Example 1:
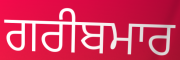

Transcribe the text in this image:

ਗਰੀਬਮਾਰ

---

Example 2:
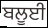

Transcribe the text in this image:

ਬਲੂਈ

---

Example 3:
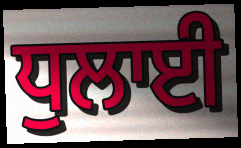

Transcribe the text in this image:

ਧੁਲਾਈ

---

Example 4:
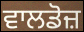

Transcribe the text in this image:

ਵਾਲਡੋਜ਼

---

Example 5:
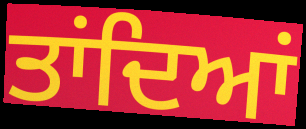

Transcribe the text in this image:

ਤਾਂਦਿਆਂ